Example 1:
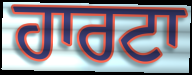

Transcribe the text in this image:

ਹਾਰਟਾ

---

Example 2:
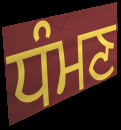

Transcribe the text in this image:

ਧੰਮਣ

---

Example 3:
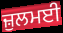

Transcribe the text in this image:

ਜ਼ੁਲਮਈ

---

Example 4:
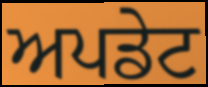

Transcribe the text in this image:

ਅਪਡੇਟ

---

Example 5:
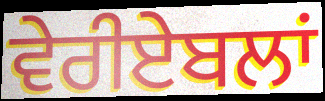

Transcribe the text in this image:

ਵੇਰੀਏਬਲਾਂ